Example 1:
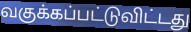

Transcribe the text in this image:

வகுக்கப்பட்டுவிட்டது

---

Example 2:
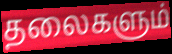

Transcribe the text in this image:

தலைகளும்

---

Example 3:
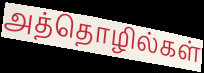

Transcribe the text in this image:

அத்தொழில்கள்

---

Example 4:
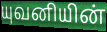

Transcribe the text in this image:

யுவனியின்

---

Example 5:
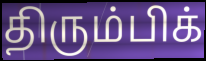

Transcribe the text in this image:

திரும்பிக்